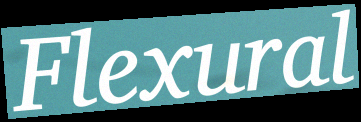
Flexural